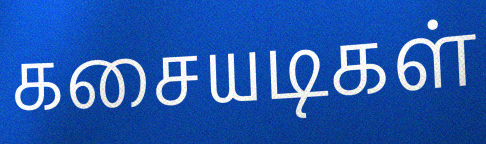
கசையடிகள்